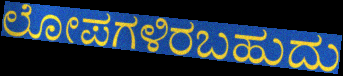
ಲೋಪಗಳಿರಬಹುದು